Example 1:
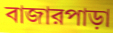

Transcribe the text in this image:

বাজারপাড়া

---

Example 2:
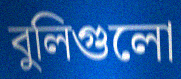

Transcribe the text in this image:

বুলিগুলো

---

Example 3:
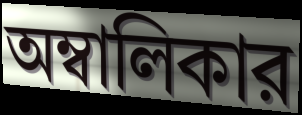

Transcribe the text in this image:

অম্বালিকার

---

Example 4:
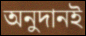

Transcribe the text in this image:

অনুদানই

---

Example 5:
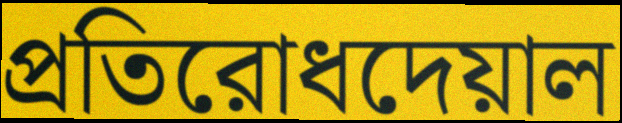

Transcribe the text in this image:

প্রতিরোধদেয়াল